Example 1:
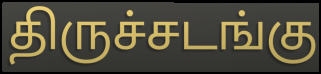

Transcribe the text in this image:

திருச்சடங்கு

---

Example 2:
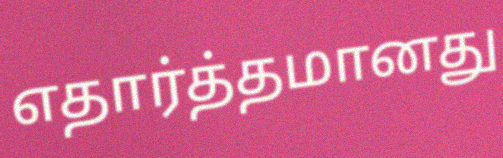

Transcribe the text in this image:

எதார்த்தமானது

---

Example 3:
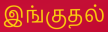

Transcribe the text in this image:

இங்குதல்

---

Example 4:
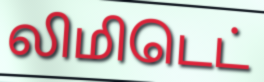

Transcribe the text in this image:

லிமிடெட்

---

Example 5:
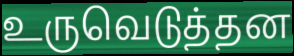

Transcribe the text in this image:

உருவெடுத்தன